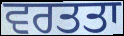
ਵਰਤਤਾ